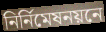
নির্নিমেষনয়নে